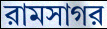
রামসাগর